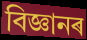
বিজ্ঞানৰ